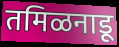
तमिळनाडू